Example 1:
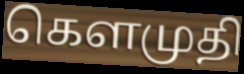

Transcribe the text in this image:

கௌமுதி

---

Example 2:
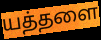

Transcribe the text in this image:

யத்தளை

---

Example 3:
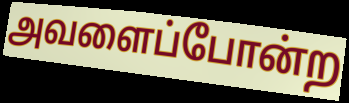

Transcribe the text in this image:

அவளைப்போன்ற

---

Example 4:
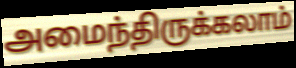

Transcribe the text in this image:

அமைந்திருக்கலாம்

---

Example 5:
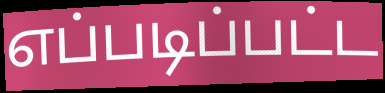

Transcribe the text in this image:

எப்படிப்பட்ட